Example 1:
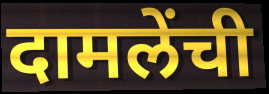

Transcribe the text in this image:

दामलेंची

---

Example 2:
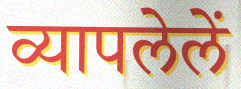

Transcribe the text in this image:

व्यापलेलें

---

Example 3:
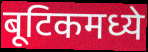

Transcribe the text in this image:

बूटिकमध्ये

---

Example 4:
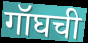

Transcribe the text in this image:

गॉघची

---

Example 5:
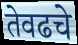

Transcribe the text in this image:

तेवढचे